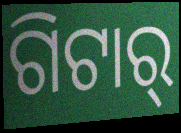
ଗିଟାର୍